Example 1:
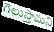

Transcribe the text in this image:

గెలుస్తామని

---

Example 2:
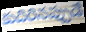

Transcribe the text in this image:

కుదిరినప్పుడే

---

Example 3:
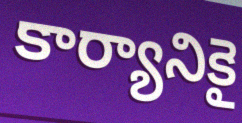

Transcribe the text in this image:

కార్యానికై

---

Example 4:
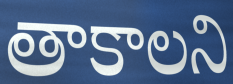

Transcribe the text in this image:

తాకాలని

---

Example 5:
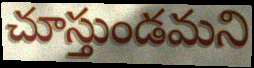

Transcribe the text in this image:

చూస్తుండమని